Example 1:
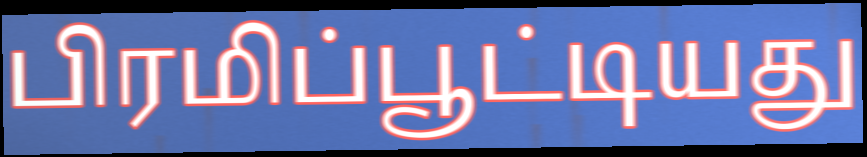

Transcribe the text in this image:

பிரமிப்பூட்டியது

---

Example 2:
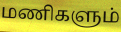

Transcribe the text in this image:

மணிகளும்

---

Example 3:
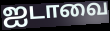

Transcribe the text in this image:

ஐடாவை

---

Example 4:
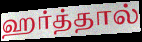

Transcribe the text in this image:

ஹர்த்தால்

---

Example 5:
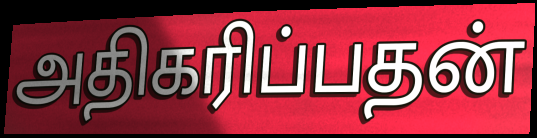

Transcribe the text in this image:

அதிகரிப்பதன்